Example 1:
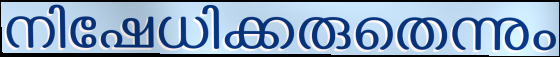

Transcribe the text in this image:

നിഷേധിക്കരുതെന്നും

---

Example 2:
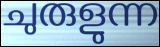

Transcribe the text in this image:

ചുരുളുന്ന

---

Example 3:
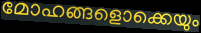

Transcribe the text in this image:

മോഹങ്ങളൊക്കെയും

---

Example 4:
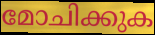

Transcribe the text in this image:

മോചിക്കുക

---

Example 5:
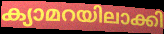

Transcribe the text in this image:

ക്യാമറയിലാക്കി